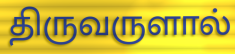
திருவருளால்